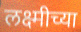
लक्ष्मीच्या